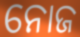
ନୋଜ